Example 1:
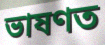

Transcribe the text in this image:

ভাষণত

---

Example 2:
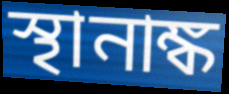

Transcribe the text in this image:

স্থানাঙ্ক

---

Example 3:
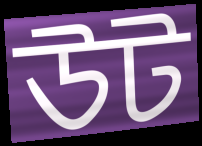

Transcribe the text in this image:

উট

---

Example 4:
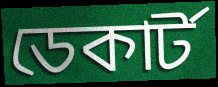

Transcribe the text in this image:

ডেকাৰ্ট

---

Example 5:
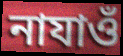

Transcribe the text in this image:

নাযাওঁ